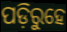
ପଡ଼ିରୁହେ